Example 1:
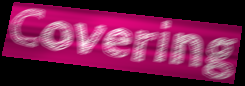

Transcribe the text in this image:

Covering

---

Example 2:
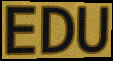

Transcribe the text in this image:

EDU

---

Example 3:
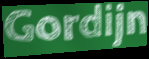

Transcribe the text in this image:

Gordijn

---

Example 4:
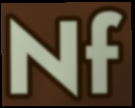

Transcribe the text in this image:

Nf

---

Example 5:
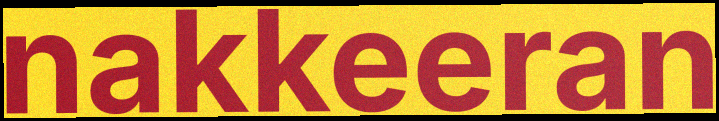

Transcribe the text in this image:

nakkeeran